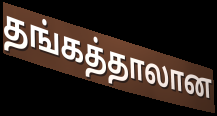
தங்கத்தாலான